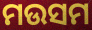
ମଉସମ